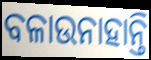
ବଳାଉନାହାନ୍ତି